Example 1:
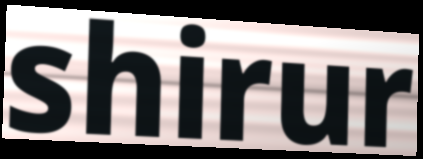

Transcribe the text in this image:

shirur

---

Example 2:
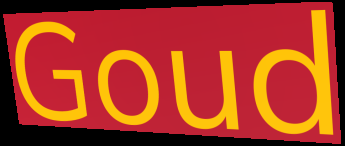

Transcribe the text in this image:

Goud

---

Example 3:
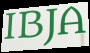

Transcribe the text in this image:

IBJA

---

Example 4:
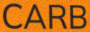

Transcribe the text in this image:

CARB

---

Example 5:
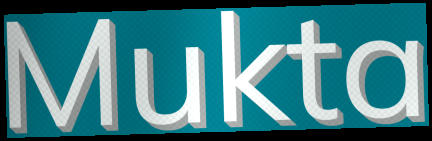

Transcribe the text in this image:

Mukta